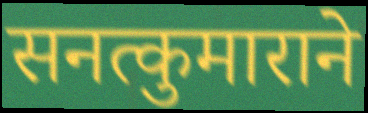
सनत्कुमाराने